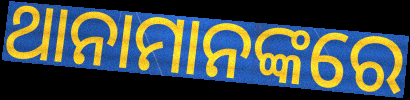
ଥାନାମାନଙ୍କରେ